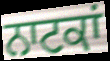
ਨਾਟਕਾਂ